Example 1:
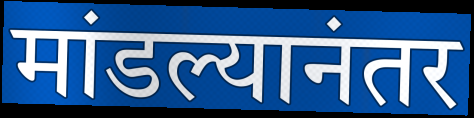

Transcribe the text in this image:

मांडल्यानंतर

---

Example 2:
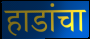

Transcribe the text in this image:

हाडांचा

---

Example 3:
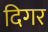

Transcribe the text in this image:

दिगर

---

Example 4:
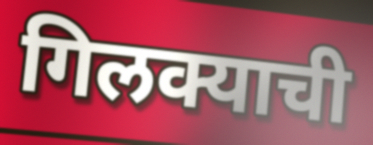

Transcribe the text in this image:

गिलक्याची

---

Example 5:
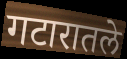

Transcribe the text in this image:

गटारातले